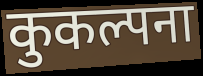
कुकल्पना